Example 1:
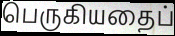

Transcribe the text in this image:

பெருகியதைப்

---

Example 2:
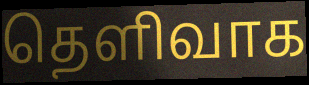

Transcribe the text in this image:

தெளிவாக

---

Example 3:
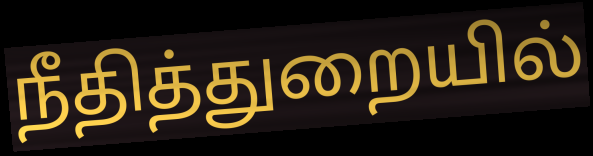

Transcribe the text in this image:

நீதித்துறையில்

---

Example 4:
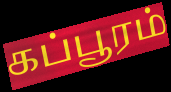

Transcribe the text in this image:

கப்பூரம்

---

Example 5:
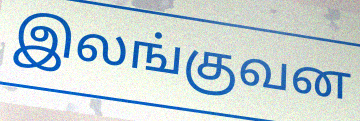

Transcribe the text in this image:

இலங்குவன